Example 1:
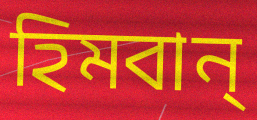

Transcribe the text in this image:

হিমবান্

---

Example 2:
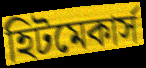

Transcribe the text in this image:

হিটমেকার্স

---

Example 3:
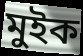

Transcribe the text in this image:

মুইক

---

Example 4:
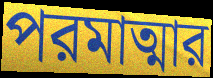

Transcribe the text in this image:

পরমাত্মার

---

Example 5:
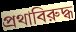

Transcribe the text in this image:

প্রথাবিরুদ্ধ